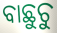
ବାଛୁଚୁ